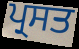
ਪ੍ਰਸਤ